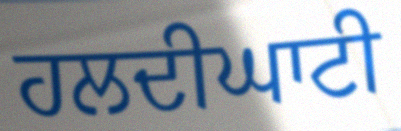
ਹਲਦੀਘਾਟੀ